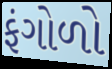
ફંગોળો